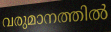
വരുമാനത്തിൽ